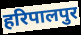
हरिपालपुर